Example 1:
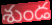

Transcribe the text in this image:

శుండ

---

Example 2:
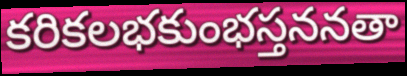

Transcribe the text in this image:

కరికలభకుంభస్తననతా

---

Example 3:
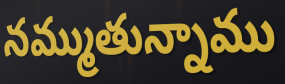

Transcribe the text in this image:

నమ్ముతున్నాము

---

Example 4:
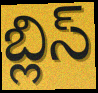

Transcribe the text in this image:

బ్లిస్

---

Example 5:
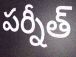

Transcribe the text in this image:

పర్నీత్